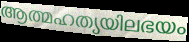
ആത്മഹത്യയിലഭയം